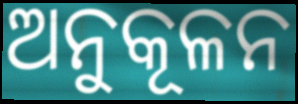
ଅନୁକୂଳନ